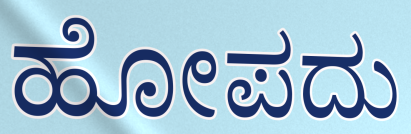
ಹೋಪದು